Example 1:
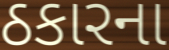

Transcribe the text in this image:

ઠકારના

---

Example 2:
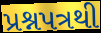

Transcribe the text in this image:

પ્રશ્નપત્રથી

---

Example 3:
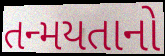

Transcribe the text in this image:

તન્મયતાનો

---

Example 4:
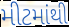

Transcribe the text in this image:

મીટમાંથી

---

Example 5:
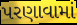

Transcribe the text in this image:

પરણાવામાં